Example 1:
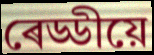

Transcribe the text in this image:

ৰেড্ডীয়ে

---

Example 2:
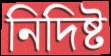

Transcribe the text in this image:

নিদিষ্ট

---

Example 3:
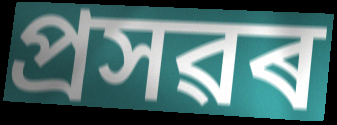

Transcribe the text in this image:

প্ৰসৱৰ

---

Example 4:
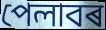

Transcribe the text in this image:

পেলাবৰ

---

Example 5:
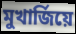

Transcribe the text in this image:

মুখাৰ্জিয়ে